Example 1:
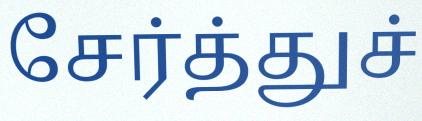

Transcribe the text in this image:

சேர்த்துச்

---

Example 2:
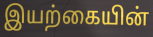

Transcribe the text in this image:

இயற்கையின்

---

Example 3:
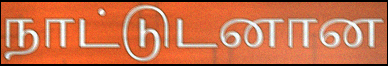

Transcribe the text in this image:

நாட்டுடனான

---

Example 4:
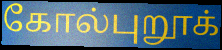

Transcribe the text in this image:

கோல்புறூக்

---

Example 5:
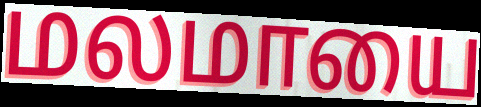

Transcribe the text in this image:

மலமாயை